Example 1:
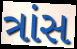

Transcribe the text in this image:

ત્રાંસ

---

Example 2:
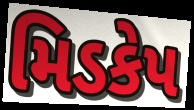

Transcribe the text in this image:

મિડકેપ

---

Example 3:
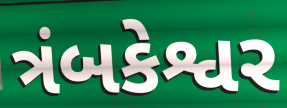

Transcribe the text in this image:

ત્રંબકેશ્વર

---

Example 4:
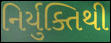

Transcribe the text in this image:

નિર્યુક્તિથી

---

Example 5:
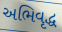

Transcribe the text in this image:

અભિવૃદ્ધ